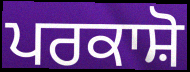
ਪਰਕਾਸ਼ੋ